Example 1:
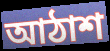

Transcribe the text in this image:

আঠাশ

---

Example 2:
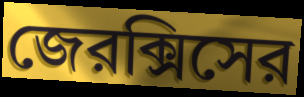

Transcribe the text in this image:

জেরক্সিসের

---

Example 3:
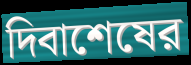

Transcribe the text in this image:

দিবাশেষের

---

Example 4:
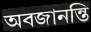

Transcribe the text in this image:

অবজানন্তি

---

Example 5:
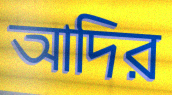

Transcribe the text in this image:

আদির